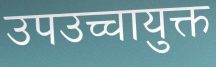
उपउच्चायुक्त